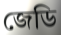
জেডি